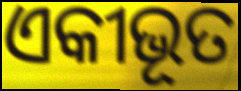
ଏକୀଭୂତ